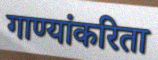
गाण्यांकरिता